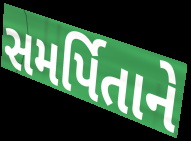
સમર્પિતાને